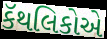
કૅથલિકોએ